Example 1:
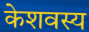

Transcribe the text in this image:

केशवस्य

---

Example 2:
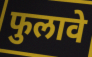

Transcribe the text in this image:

फुलावे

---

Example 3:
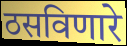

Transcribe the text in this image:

ठसविणारे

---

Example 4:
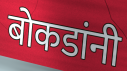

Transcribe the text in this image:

बोकडांनी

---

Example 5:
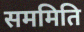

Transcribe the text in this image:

सममिति